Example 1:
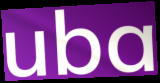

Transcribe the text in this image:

uba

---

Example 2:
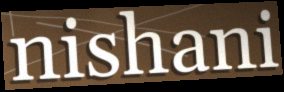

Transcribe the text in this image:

nishani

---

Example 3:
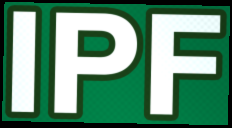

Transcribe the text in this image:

IPF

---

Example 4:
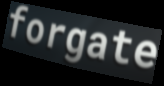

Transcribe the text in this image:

forgate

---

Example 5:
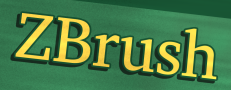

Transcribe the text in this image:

ZBrush